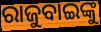
ରାଜୁବାଇଙ୍କୁ